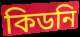
কিডনি